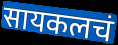
सायकलचं